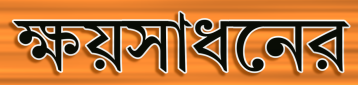
ক্ষয়সাধনের